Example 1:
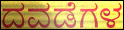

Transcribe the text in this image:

ದವಡೆಗಳ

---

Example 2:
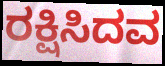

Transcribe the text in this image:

ರಕ್ಷಿಸಿದವ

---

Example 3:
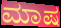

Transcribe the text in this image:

ಮಾಷ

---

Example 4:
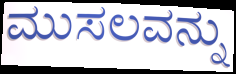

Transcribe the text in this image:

ಮುಸಲವನ್ನು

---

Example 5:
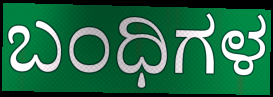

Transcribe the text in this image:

ಬಂಧಿಗಳ